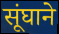
सूंघाने